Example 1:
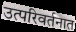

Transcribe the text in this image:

उत्परिवर्तनात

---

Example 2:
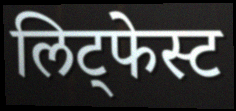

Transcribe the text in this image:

लिट्फेस्ट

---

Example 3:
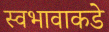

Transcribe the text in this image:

स्वभावाकडे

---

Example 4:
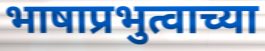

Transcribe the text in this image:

भाषाप्रभुत्वाच्या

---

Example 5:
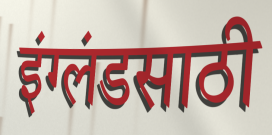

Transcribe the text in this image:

इंग्लंडसाठी